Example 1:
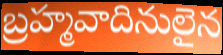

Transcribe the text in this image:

బ్రహ్మవాదినులైన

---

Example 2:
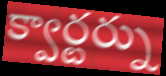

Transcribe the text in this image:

క్వార్టర్ను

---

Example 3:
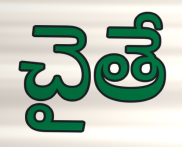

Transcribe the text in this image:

చైతే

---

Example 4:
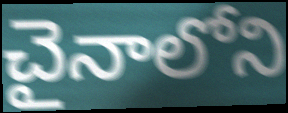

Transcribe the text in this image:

చైనాలోని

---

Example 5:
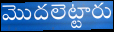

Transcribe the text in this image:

మొదలెట్టారు